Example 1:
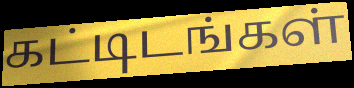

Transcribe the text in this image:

கட்டிடங்கள்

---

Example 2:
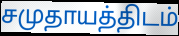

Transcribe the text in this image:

சமுதாயத்திடம்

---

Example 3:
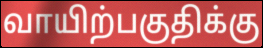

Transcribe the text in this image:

வாயிற்பகுதிக்கு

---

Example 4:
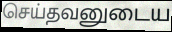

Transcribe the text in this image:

செய்தவனுடைய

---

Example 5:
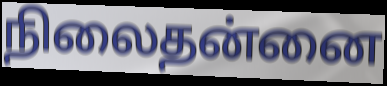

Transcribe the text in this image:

நிலைதன்னை